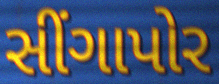
સીંગાપોર